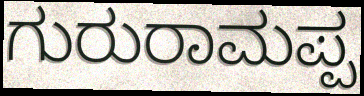
ಗುರುರಾಮಪ್ಪ